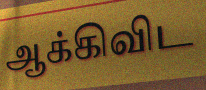
ஆக்கிவிட